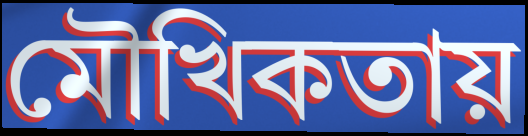
মৌখিকতায়